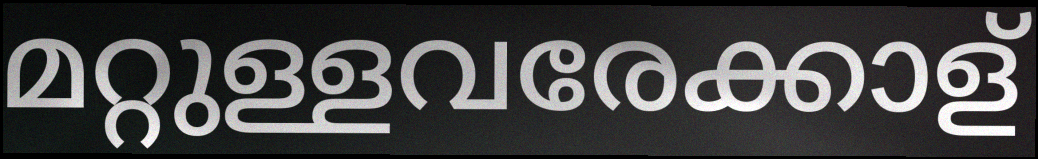
മറ്റുള്ളവരേക്കാള്